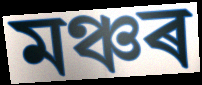
মঞ্চৰ